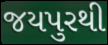
જયપુરથી